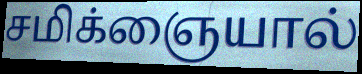
சமிக்ஞையால்